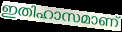
ഇതിഹാസമാണ്